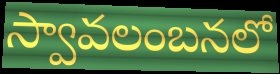
స్వావలంబనలో